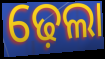
ଢ଼େଲା